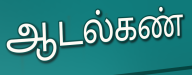
ஆடல்கண்